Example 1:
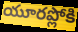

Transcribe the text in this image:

యూరప్లోకి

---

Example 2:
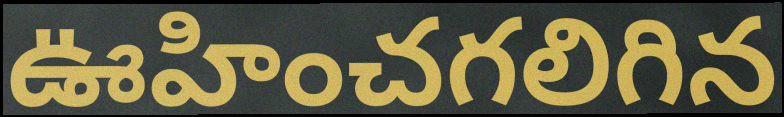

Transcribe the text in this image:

ఊహించగలిగిన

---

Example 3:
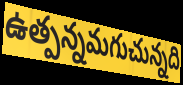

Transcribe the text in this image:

ఉత్పన్నమగుచున్నది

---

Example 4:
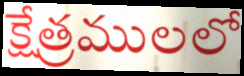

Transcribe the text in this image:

క్షేత్రములలో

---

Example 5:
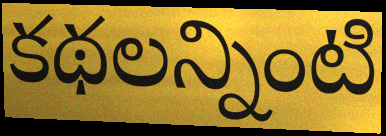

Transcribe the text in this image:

కథలన్నింటి